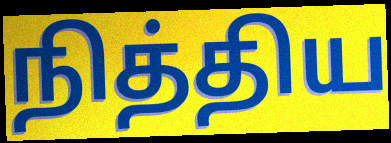
நித்திய